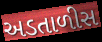
અડતાળીસ